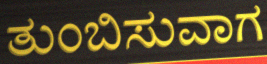
ತುಂಬಿಸುವಾಗ